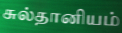
சுல்தானியம்